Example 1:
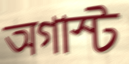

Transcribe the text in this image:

অগাস্ট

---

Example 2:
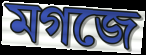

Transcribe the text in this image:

মগজে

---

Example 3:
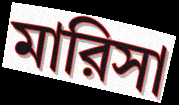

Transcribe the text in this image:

মারিসা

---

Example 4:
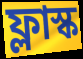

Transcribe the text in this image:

ফ্লাস্ক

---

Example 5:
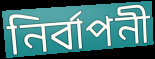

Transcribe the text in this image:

নির্বাপনী